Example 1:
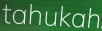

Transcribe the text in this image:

tahukah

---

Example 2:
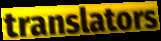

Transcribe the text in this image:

translators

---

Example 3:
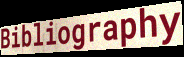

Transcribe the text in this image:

Bibliography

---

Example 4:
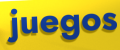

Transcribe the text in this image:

juegos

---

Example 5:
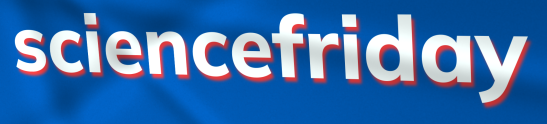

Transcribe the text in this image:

sciencefriday